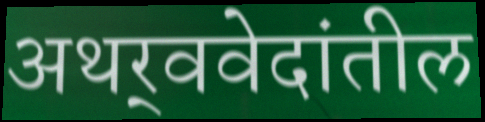
अथर्ववेदांतील